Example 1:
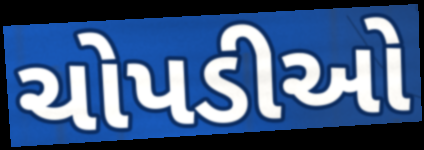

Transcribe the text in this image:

ચોપડીઓ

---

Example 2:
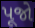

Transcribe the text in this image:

પૂજો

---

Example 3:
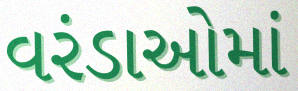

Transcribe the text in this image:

વરંડાઓમાં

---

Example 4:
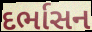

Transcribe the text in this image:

દર્ભાસન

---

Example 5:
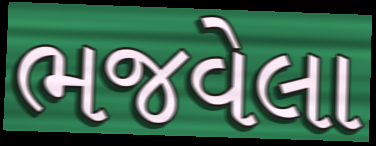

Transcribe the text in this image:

ભજવેલા